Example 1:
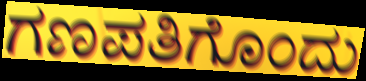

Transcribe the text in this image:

ಗಣಪತಿಗೊಂದು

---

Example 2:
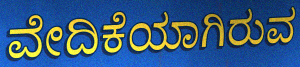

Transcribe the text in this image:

ವೇದಿಕೆಯಾಗಿರುವ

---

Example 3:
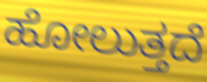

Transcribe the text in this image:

ಹೋಲುತ್ತದೆ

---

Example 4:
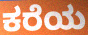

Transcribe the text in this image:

ಕರೆಯ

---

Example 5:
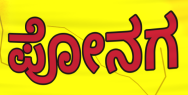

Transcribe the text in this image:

ಪೋನಗ